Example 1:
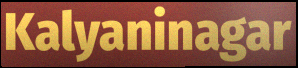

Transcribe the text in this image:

Kalyaninagar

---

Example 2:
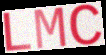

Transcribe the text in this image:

LMC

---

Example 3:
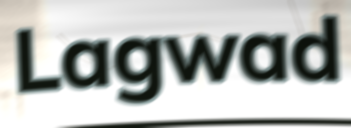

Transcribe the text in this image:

Lagwad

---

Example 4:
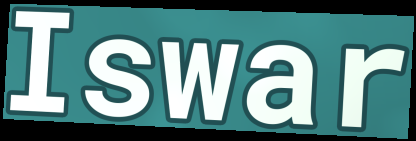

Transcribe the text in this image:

Iswar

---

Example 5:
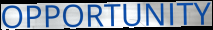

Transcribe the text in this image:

OPPORTUNITY